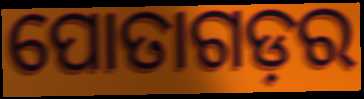
ପୋତାଗଡ଼ର